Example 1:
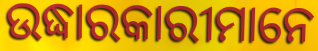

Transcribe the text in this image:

ଉଦ୍ଧାରକାରୀମାନେ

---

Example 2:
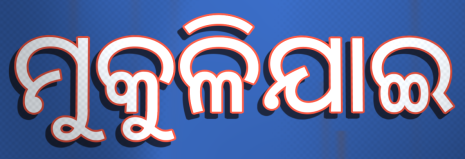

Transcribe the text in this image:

ମୁକୁଳିଯାଇ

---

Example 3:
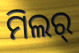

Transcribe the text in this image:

ମିଲର୍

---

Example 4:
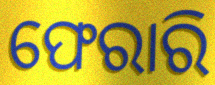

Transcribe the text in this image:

ଫେରାରି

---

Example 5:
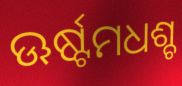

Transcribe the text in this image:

ଊର୍ଷ୍ଟମଧଶ୍ଚ